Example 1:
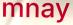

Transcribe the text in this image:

mnay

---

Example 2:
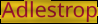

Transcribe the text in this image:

Adlestrop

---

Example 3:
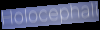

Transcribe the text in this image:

Holocephali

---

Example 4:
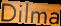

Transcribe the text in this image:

Dilma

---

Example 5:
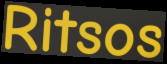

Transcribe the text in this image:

Ritsos